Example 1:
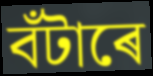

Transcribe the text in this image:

বঁটাৰে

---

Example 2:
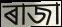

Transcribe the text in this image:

ৰাজা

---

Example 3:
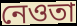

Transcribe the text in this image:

নেওতা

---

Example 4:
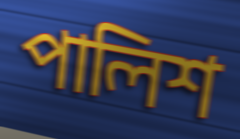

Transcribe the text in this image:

পালিশ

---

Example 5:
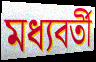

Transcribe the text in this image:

মধ্যবৰ্তী